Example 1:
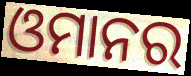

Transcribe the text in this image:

ଓମାନର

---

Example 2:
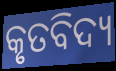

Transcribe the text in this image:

କୃତବିଦ୍ଯ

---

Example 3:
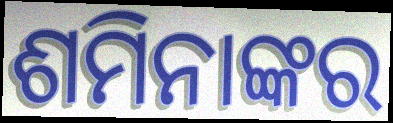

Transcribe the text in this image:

ଶମିନାଙ୍କର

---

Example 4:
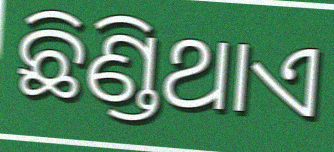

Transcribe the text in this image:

ଛିଣ୍ଡିଥାଏ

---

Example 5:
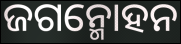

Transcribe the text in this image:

ଜଗନ୍ମୋହନ